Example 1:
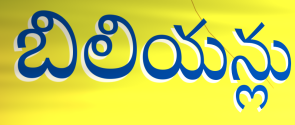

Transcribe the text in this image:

బిలియన్లు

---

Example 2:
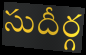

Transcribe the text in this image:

సుదీర్గ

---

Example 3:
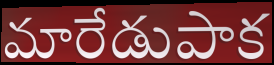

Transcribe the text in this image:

మారేడుపాక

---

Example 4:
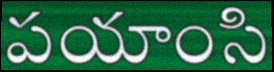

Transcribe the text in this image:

పయాంసి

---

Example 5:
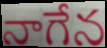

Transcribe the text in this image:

నాగేన